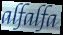
alfalfa